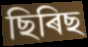
ছিৰিছ